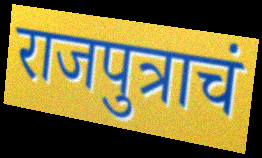
राजपुत्राचं